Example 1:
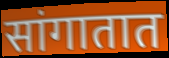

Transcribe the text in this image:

सांगातात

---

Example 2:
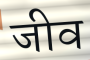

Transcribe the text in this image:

जीव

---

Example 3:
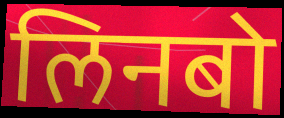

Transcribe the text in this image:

लिनबो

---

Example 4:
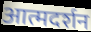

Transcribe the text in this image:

आत्मदर्शन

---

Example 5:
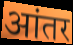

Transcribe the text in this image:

आंतर